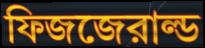
ফিজজেরাল্ড